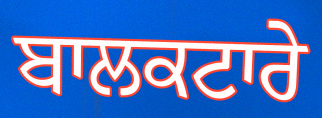
ਬਾਲਕਟਾਰੇ